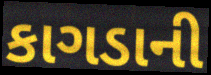
કાગડાની